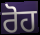
ਰੋਹ